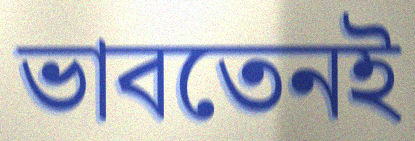
ভাবতেনই